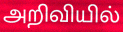
அறிவியில்